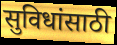
सुविधांसाठी